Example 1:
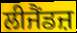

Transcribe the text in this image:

ਲੀਜੈਂਡਜ਼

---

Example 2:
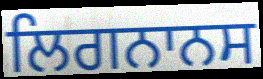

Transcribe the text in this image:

ਲਿਗਨਾਨਸ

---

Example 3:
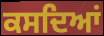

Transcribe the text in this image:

ਕਸਦਿਆਂ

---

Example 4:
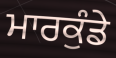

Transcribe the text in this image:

ਮਾਰਕੁੰਡੇ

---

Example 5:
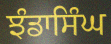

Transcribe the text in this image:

ਝੰਡਾਸਿੰਘ